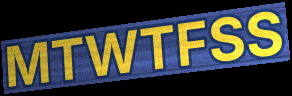
MTWTFSS